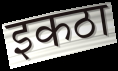
इकठा